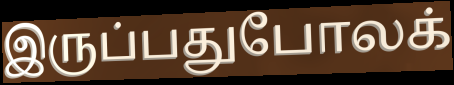
இருப்பதுபோலக்